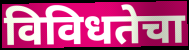
विविधतेचा